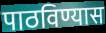
पाठविण्यास